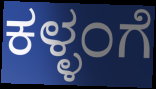
ಕಳ್ಳಂಗೆ